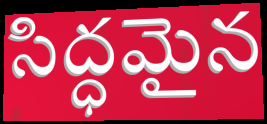
సిద్ధమైన